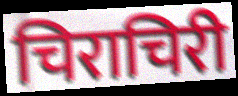
चिराचिरी